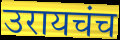
उरायचंच